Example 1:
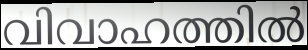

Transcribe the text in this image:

വിവാഹത്തിൽ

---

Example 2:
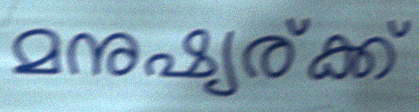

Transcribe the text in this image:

മനുഷ്യര്ക്ക്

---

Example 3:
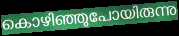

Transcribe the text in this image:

കൊഴിഞ്ഞുപോയിരുന്നു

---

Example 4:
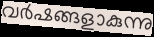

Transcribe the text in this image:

വർഷങ്ങളാകുന്നു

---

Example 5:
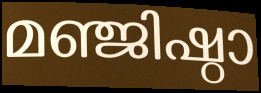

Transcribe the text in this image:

മഞ്ജിഷ്ഠാ